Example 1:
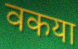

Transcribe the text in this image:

वकया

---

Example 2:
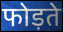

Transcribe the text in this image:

फोड़ते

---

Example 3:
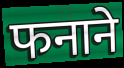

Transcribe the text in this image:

फनाने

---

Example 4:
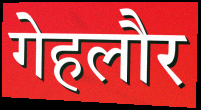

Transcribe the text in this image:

गेहलौर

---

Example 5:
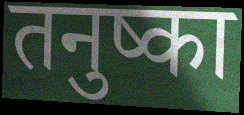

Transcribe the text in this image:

तनुष्का